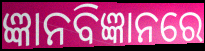
ଜ୍ଞାନବିଜ୍ଞାନରେ